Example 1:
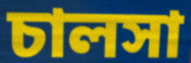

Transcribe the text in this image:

চালসা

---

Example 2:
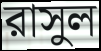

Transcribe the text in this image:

রাসুল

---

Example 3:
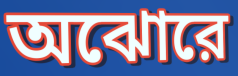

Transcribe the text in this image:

অঝোরে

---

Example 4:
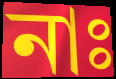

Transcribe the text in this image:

নাঃ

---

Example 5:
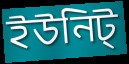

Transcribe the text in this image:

ইউনিট্